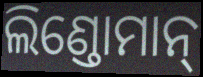
ଲିଣ୍ଡୋମାନ୍